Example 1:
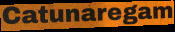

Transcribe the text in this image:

Catunaregam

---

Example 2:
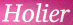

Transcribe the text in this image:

Holier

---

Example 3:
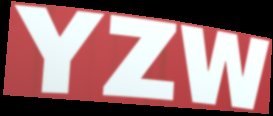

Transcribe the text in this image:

YZW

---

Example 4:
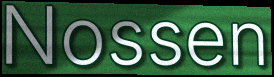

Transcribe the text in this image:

Nossen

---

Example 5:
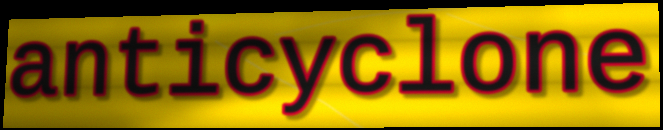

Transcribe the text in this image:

anticyclone